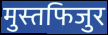
मुस्तफिजुर